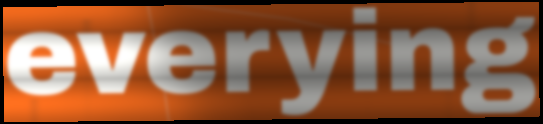
everying